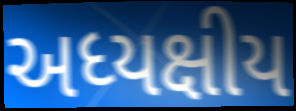
અધ્યક્ષીય